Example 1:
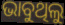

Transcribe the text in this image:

ଭାବୁଥିଲୁ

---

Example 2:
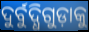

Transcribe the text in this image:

ଦୁର୍ବୁଦ୍ଧିଗୁଡ଼ାକୁ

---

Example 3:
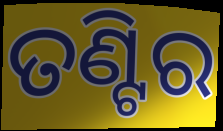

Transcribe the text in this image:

ତଣ୍ଟିର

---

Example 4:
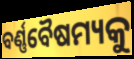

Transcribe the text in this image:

ବର୍ଣ୍ଣବୈଷମ୍ୟକୁ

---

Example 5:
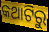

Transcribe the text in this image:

କଥାଟିରୁ